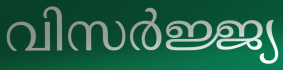
വിസർജ്ജ്യ